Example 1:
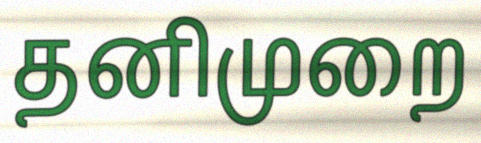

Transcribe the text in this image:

தனிமுறை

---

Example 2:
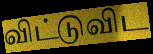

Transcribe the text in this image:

விட்டுவிட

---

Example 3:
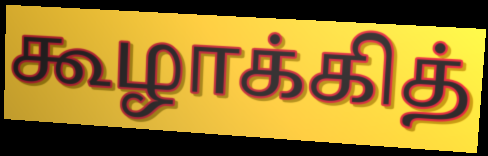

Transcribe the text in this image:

கூழாக்கித்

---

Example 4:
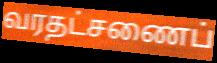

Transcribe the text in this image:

வரதட்சணைப்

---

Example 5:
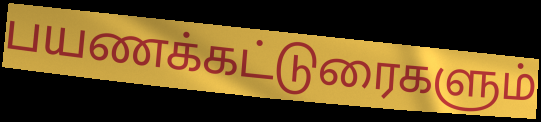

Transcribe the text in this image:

பயணக்கட்டுரைகளும்